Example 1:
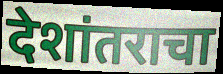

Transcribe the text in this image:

देशांतराचा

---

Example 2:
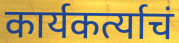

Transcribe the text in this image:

कार्यकर्त्याचं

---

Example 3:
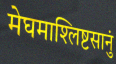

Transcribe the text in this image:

मेघमाश्लिष्टसानुं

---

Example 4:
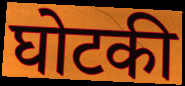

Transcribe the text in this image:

घोटकी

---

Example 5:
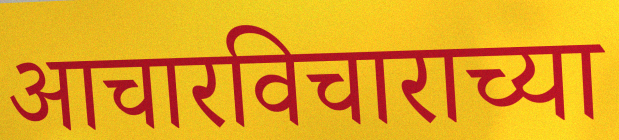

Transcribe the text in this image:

आचारविचाराच्या